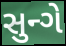
સુન્ગે